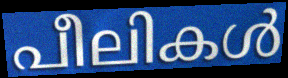
പീലികൾ